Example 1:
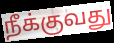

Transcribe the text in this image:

நீக்குவது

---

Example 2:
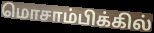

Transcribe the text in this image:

மொசாம்பிக்கில்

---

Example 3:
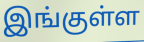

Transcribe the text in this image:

இங்குள்ள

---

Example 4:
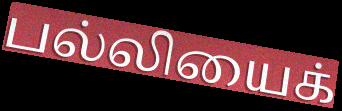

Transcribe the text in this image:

பல்லியைக்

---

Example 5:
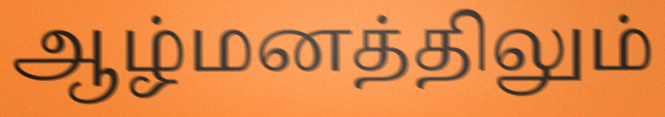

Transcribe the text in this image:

ஆழ்மனத்திலும்